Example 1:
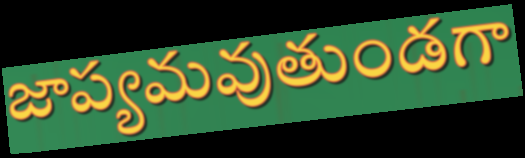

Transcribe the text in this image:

జాప్యమవుతుండగా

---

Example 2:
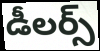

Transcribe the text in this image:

డీలర్స్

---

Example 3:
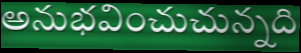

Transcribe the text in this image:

అనుభవించుచున్నది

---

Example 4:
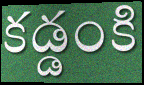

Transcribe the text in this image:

కడ్డంకి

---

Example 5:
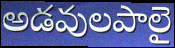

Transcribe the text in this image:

అడవులపాలై